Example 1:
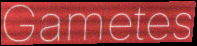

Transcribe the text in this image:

Gametes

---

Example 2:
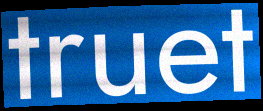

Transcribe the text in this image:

truet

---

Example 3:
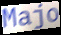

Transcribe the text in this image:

Majo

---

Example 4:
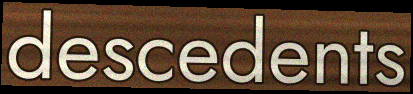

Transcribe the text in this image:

descedents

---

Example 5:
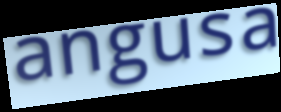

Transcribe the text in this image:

angusa